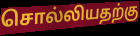
சொல்லியதற்கு